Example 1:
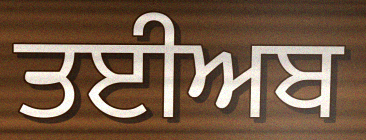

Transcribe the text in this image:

ਤਈਅਬ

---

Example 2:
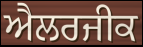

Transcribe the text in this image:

ਐਲਰਜੀਕ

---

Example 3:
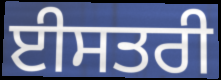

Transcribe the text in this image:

ਈਸਤਰੀ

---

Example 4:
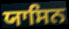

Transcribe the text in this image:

ਯਾਸਿਨ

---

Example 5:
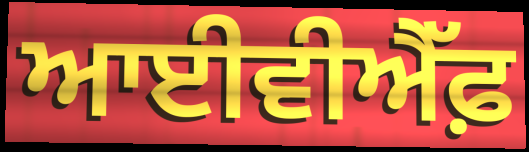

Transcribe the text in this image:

ਆਈਵੀਐੱਫ਼